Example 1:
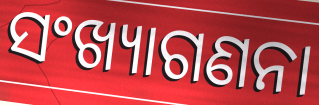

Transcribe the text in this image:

ସଂଖ୍ୟାଗଣନା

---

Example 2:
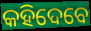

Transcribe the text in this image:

କହିଦେବେ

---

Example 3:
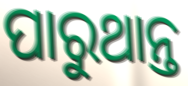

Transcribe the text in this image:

ପାରୁଥାନ୍ତ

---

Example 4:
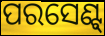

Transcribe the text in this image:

ପରସେଣ୍ଟ୍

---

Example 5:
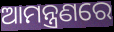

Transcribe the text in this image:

ଆମନ୍ତ୍ରଣରେ